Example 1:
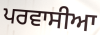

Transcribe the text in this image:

ਪਰਵਾਸੀਆ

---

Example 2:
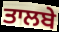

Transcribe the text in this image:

ਤਾਲਬੇ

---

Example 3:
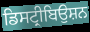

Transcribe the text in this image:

ਡਿਸਟ੍ਰੀਬਿਉਸ਼ਨ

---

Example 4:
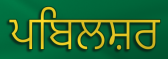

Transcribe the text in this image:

ਪਬਿਲਸ਼ਰ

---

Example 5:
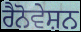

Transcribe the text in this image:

ਰੈਨੋਵੇਸ਼ਨ